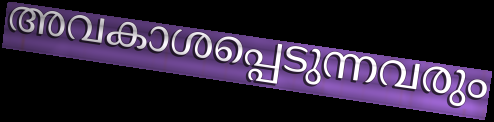
അവകാശപ്പെടുന്നവരും